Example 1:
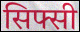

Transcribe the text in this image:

सिफ्सी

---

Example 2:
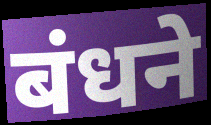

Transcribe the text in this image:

बंधने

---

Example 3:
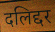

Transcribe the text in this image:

दलिद्दर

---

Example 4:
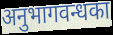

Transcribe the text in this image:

अनुभागवन्धका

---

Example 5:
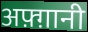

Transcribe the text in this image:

अफ़्ग़ानी